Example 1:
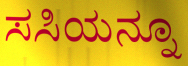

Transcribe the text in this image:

ಸಸಿಯನ್ನೂ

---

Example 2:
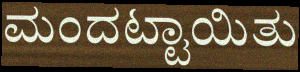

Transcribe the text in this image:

ಮಂದಟ್ಟಾಯಿತು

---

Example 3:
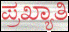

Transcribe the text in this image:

ಪ್ರಖ್ಯಾತಿ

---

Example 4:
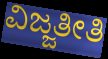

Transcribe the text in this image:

ವಿಜ್ಜತೀತಿ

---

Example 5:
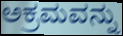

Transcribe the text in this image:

ಅಕ್ರಮವನ್ನು